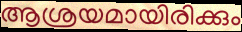
ആശ്രയമായിരിക്കും